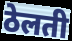
ठेलती